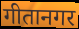
गीतानगर